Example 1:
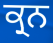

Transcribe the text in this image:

ਕ੍ਰਨ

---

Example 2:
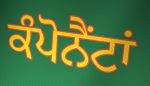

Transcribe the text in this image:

ਕੰਪੋਨੈਂਟਾਂ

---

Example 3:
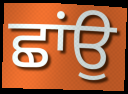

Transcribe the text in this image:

ਛਾਂਉ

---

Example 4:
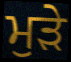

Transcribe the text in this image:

ਮੁੜੇ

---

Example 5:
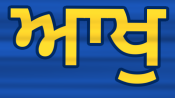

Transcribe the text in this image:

ਆਖੁ